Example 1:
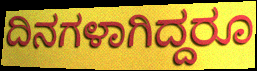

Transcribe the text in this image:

ದಿನಗಳಾಗಿದ್ದರೂ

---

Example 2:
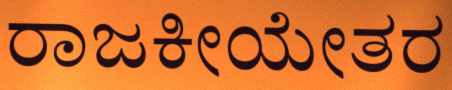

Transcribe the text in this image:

ರಾಜಕೀಯೇತರ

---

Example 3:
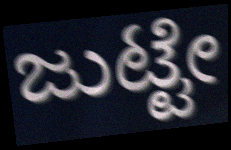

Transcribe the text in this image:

ಜುಟ್ಟೇ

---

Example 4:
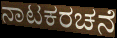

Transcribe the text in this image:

ನಾಟಕರಚನೆ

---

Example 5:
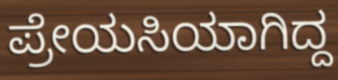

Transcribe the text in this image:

ಪ್ರೇಯಸಿಯಾಗಿದ್ದ